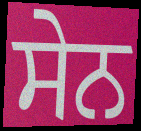
ਸੇਨ